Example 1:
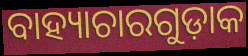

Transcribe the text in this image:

ବାହ୍ୟାଚାରଗୁଡ଼ାକ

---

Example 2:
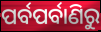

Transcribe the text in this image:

ପର୍ବପର୍ବାଣିରୁ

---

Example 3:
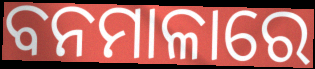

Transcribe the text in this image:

ବନମାଳାରେ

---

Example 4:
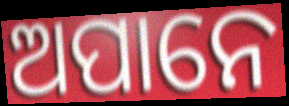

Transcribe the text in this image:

ଅପାନେ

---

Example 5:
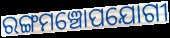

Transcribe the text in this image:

ରଙ୍ଗମଞ୍ଚୋପଯୋଗୀ